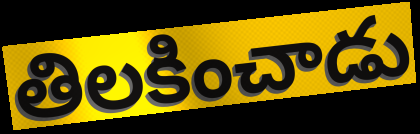
తిలకించాడు